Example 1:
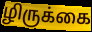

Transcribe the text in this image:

ழிருக்கை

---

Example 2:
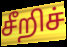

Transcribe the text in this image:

சீறிச்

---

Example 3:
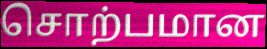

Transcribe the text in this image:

சொற்பமான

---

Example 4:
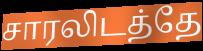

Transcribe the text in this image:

சாரலிடத்தே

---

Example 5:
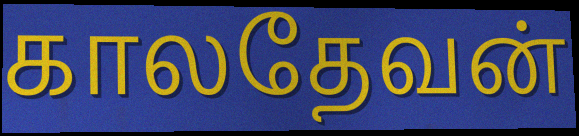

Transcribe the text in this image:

காலதேவன்